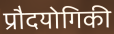
प्रौदयोगिकी